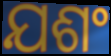
ଯଶଂ